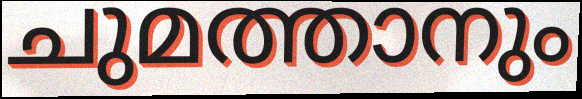
ചുമത്താനും